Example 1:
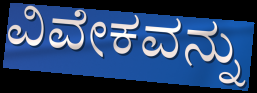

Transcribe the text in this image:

ವಿವೇಕವನ್ನು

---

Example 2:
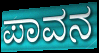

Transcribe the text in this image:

ಪಾವನ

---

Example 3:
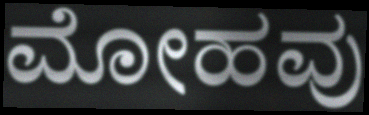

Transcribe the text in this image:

ಮೋಹವು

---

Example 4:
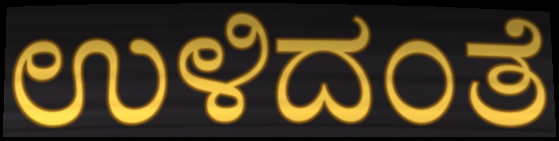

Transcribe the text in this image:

ಉಳಿದಂತೆ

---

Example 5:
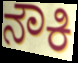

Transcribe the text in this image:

ನೌಕಿ